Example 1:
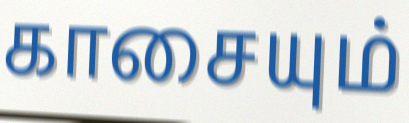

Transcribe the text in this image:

காசையும்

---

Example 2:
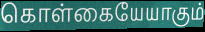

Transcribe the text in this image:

கொள்கையேயாகும்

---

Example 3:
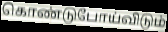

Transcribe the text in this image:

கொண்டுபோய்விடும்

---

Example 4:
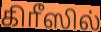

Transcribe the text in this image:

கிரீஸில்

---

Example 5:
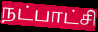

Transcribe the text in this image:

நட்பாட்சி